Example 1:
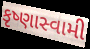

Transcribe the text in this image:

કૃષ્ણાસ્વામી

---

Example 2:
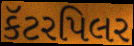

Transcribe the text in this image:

કૅટરપિલર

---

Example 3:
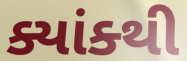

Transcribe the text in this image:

ક્યાંક્થી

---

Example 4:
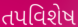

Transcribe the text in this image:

તપવિશેષ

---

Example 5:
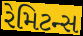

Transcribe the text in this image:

રેમિટન્સ